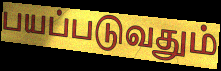
பயப்படுவதும்